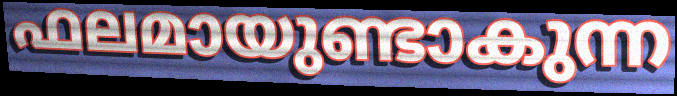
ഫലമായുണ്ടാകുന്ന